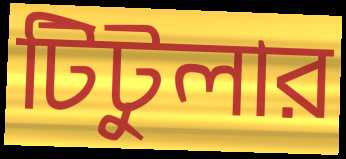
টিটুলার